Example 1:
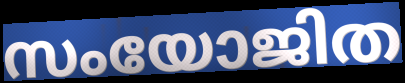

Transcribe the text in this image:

സംയോജിത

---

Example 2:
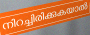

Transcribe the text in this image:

നിറച്ചിരിക്കുകയാൽ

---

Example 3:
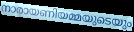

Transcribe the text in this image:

നാരായണിയമ്മയുടെയും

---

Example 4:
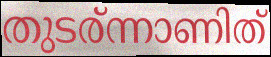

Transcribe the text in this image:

തുടര്ന്നാണിത്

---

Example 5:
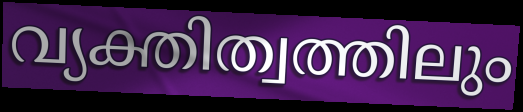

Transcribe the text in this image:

വ്യക്തിത്വത്തിലും